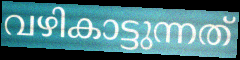
വഴികാട്ടുന്നത്